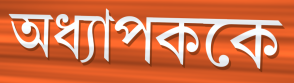
অধ্যাপককে